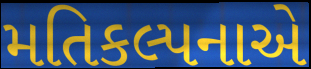
મતિકલ્પનાએ